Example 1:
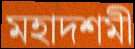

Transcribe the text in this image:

মহাদশমী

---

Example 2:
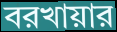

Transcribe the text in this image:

বরখায়ার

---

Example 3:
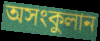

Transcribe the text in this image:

অসংকুলান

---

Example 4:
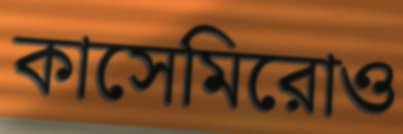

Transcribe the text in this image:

কাসেমিরোও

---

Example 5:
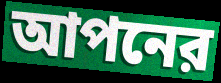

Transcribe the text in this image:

আপনের